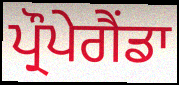
ਪ੍ਰੌਪੇਗੈਂਡਾ